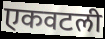
एकवटली